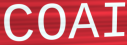
COAI